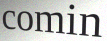
comin